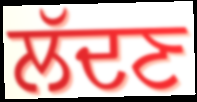
ਲੱਦਣ